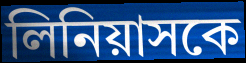
লিনিয়াসকে